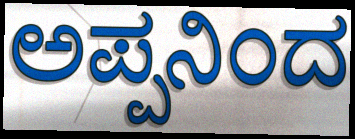
ಅಪ್ಪನಿಂದ